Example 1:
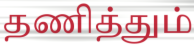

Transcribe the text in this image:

தணித்தும்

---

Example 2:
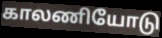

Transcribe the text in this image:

காலணியோடு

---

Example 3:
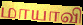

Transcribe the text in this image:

மாயாவி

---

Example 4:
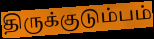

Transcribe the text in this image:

திருக்குடும்பம்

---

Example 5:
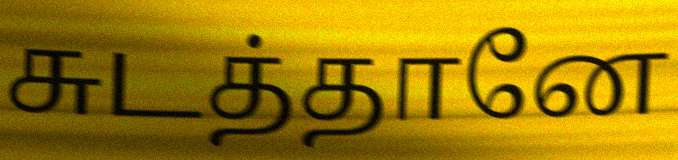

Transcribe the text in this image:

சுடத்தானே